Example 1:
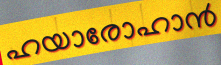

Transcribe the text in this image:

ഹയാരോഹാൻ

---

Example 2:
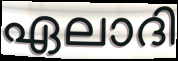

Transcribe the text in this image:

ഏലാദി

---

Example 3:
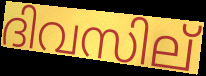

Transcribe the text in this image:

ദിവസില്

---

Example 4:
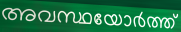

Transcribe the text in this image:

അവസ്ഥയോർത്ത്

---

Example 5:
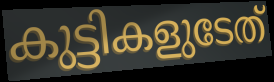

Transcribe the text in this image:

കുട്ടികളുടേത്